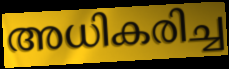
അധികരിച്ച